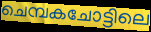
ചെമ്പകചോട്ടിലെ